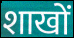
शाखों